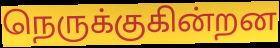
நெருக்குகின்றன